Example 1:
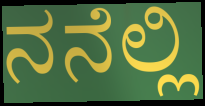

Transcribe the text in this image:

ನನೆಲ್ಲಿ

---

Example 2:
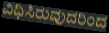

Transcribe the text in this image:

ವಿಧಿಸಿರುವುದರಿಂದ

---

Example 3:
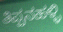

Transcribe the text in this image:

ತಿಪ್ಪನಹಳ್ಳಿ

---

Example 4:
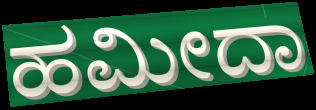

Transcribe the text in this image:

ಹಮೀದಾ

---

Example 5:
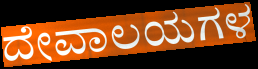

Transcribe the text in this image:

ದೇವಾಲಯಗಳ